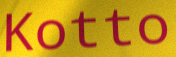
Kotto